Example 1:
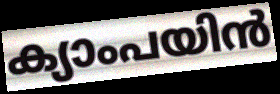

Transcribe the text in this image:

ക്യാംപയിൻ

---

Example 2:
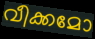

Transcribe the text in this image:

വീക്കമോ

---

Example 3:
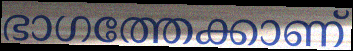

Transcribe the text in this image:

ഭാഗത്തേക്കാണ്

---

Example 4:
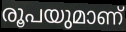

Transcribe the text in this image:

രൂപയുമാണ്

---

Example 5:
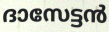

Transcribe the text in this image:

ദാസേട്ടൻ